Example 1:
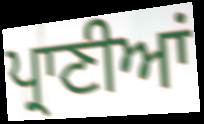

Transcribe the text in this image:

ਪ੍ਰਾਣੀਆਂ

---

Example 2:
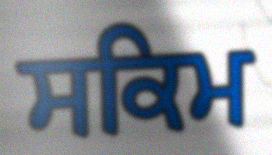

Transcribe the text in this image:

ਸਕਿਮ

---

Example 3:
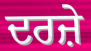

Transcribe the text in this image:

ਦਰਜ਼ੇ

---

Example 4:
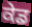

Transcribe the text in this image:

ਕੇਡ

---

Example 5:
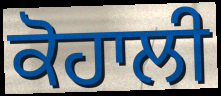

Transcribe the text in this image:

ਕੋਹਾਲੀ